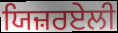
ਯਿਜ਼ਰਏਲੀ